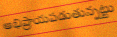
అభిప్రాయపడుతున్నట్టు